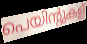
പെയിന്റുകള്